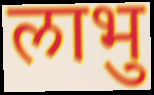
लाभु